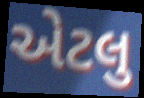
એટલુ